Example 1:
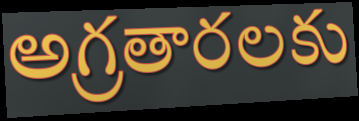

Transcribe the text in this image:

అగ్రతారలకు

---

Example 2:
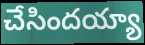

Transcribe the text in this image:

చేసిందయ్యా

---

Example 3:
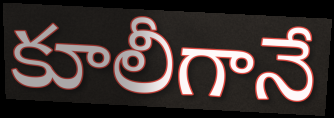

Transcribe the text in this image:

కూలీగానే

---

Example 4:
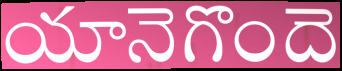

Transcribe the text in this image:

యానెగొందె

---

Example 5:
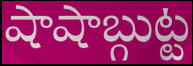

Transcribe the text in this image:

షాషాబ్గుట్ట